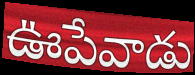
ఊపేవాడు